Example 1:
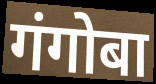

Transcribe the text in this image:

गंगोबा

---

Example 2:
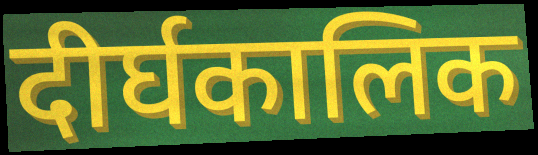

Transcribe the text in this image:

दीर्घकालिक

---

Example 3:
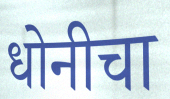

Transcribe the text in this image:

धोनीचा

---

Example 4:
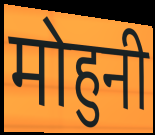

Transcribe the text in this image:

मोहुनी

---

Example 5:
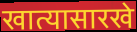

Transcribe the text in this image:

खात्यासारखे